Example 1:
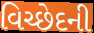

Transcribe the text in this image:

વિચ્છેદની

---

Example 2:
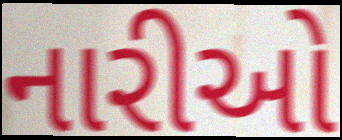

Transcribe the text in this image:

નારીઓ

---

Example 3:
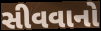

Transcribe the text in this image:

સીવવાનો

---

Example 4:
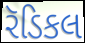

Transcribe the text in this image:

રૅડિકલ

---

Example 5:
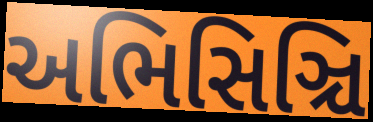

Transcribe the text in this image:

અભિસિઞ્ચિ